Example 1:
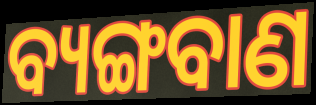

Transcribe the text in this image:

ବ୍ୟଙ୍ଗବାଣ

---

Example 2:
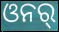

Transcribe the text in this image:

ଓନର୍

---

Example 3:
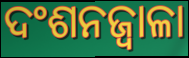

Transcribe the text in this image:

ଦଂଶନଜ୍ୱାଳା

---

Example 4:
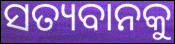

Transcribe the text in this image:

ସତ୍ୟବାନକୁ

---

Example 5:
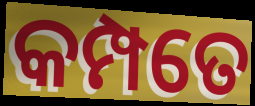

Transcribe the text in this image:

କମ୍ପତେ